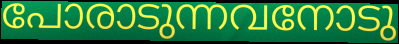
പോരാടുന്നവനോടു